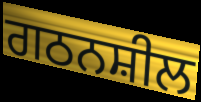
ਗਠਨਸ਼ੀਲ